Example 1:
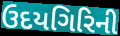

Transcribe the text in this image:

ઉદયગિરિની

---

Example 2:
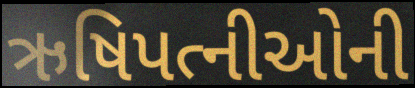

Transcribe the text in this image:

ઋષિપત્નીઓની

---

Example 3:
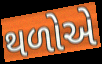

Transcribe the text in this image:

થળોએ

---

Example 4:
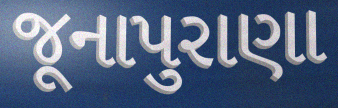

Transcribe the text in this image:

જૂનાપુરાણા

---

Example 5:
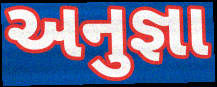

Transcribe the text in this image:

અનુજ્ઞા